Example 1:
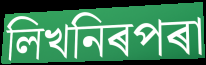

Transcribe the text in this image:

লিখনিৰপৰা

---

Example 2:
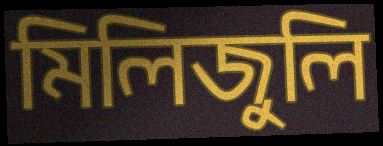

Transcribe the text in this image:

মিলিজুলি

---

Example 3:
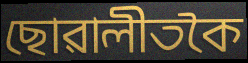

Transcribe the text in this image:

ছোৱালীতকৈ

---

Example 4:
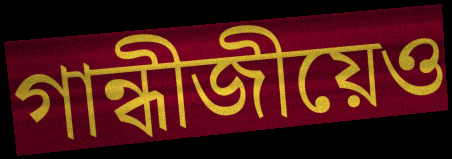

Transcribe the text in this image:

গান্ধীজীয়েও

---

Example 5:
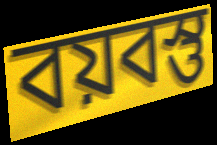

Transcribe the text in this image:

বয়বস্তু